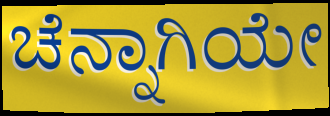
ಚೆನ್ನಾಗಿಯೇ